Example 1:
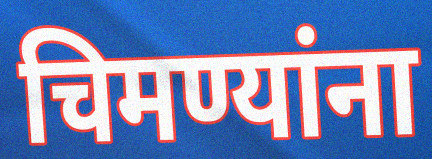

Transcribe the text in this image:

चिमण्यांना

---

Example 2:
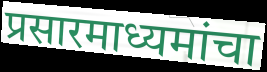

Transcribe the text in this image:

प्रसारमाध्यमांचा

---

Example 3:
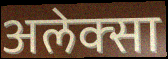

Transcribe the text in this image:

अलेक्‍सा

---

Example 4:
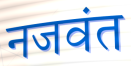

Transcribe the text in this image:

नजवंत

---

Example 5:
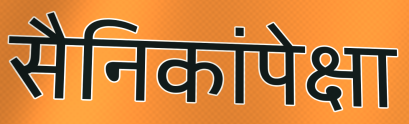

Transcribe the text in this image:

सैनिकांपेक्षा